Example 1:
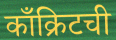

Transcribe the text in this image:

काँक्रिटची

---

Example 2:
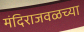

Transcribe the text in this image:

मंदिराजवळच्या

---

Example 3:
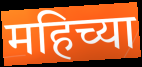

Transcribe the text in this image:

महिच्या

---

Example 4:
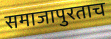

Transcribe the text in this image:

समाजापुरताच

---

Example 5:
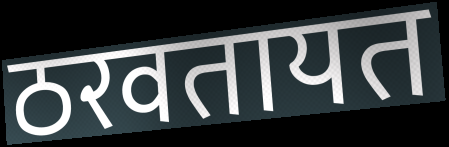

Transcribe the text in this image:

ठरवतायत